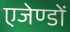
एजेण्डों